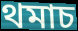
থমাচ